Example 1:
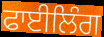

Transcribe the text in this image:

ਫਾਈਲਿੰਗ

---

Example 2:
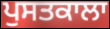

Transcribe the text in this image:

ਪੁਸਤਕਾਲਾ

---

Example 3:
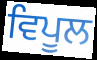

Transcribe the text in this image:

ਵਿਪੂਲ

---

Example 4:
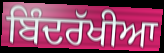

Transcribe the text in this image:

ਬਿੰਦਰੱਖੀਆ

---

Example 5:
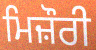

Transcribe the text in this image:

ਮਿਜ਼ੌਰੀ